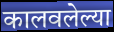
कालवलेल्या